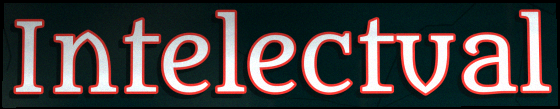
Intelectual